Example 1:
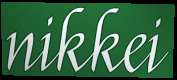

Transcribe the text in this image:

nikkei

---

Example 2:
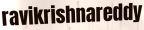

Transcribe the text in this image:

ravikrishnareddy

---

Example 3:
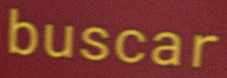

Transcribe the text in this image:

buscar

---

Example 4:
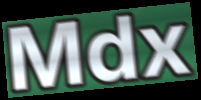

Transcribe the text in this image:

Mdx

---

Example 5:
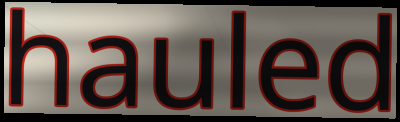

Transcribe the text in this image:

hauled